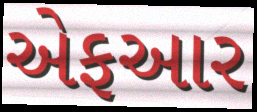
એફઆર